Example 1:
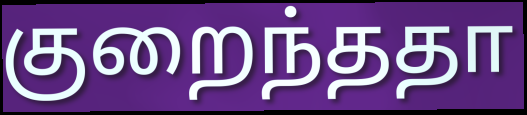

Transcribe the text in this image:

குறைந்ததா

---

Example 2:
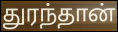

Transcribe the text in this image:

துரந்தான்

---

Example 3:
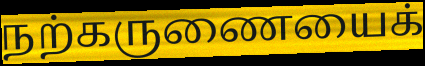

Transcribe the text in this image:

நற்கருணையைக்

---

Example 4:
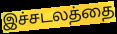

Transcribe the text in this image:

இச்சடலத்தை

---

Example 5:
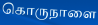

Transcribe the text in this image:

கொருநாளை